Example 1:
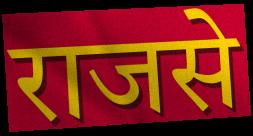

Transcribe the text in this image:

राजसे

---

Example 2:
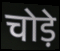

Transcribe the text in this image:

चोड़े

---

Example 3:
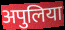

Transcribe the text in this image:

अपुलिया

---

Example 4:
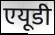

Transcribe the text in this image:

एयूडी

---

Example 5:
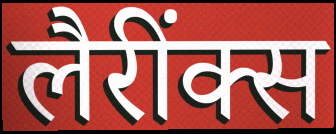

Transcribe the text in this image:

लैरींक्स